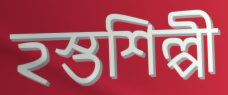
হস্তশিল্পী